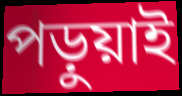
পড়ুয়াই